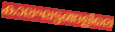
കാലഘട്ടങ്ങളിലെ